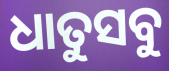
ଧାତୁସବୁ